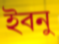
ইবনু